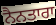
ਨੈਨਤਾਰਾ